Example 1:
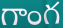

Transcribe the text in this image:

గాంగ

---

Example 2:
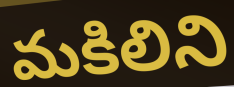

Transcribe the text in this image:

మకిలిని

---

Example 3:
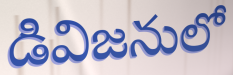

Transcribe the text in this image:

డివిజనులో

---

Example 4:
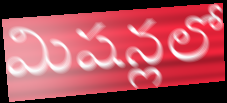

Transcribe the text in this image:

మిషన్లలో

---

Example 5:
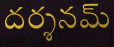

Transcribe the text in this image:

దర్శనమ్